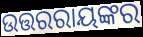
ଉତ୍ତରରାୟଙ୍କର